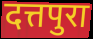
दत्तपुरा